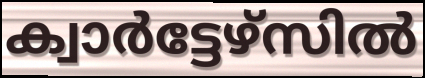
ക്വാർട്ടേഴ്സിൽ